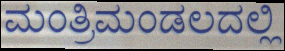
ಮಂತ್ರಿಮಂಡಲದಲ್ಲಿ